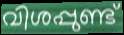
വിശപ്പുണ്ട്